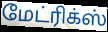
மேட்ரிக்ஸ்